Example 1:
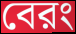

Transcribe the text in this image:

বেরং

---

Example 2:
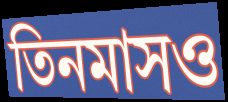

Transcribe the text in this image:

তিনমাসও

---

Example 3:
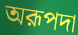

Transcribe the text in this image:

অরূপদা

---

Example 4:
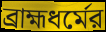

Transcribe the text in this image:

ব্রাহ্মধর্মের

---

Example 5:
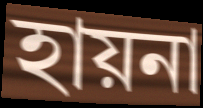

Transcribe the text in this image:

হায়না